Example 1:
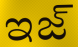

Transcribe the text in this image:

ఇజ్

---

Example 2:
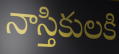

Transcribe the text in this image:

నాస్తికులకి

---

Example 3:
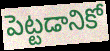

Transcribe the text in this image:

పెట్టడానికో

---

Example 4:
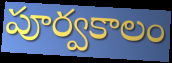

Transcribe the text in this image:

పూర్వకాలం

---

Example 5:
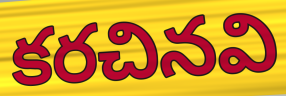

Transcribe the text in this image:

కరచినవి